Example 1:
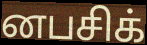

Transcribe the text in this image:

னபசிக்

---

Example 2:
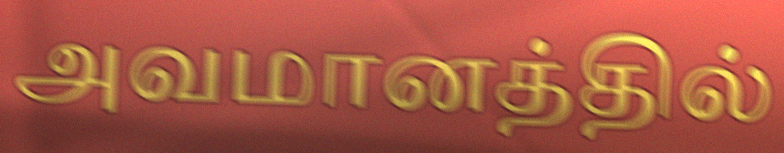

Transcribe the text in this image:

அவமானத்தில்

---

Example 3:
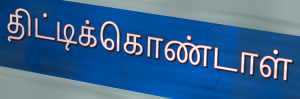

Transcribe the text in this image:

திட்டிக்கொண்டாள்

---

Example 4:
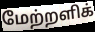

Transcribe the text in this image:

மேற்றளிக்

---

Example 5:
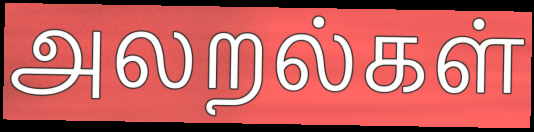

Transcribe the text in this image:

அலறல்கள்